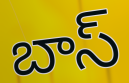
బాస్